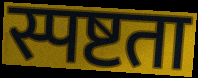
स्पष्टता